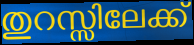
തുറസ്സിലേക്ക്